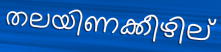
തലയിണക്കീഴില്